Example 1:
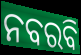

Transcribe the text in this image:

ନବରବି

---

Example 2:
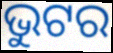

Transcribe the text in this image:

ଭୁଟର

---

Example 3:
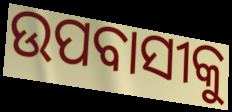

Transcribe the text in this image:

ଉପବାସୀକୁ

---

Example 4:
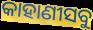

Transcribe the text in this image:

କାହାଣୀସବୁ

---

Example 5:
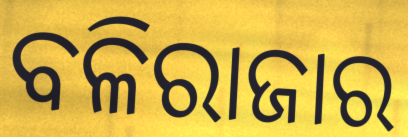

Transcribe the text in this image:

ବଳିରାଜାର